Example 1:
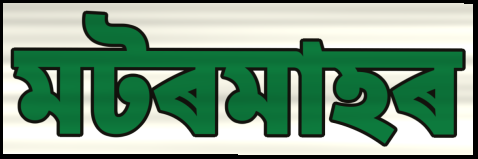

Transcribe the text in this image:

মটৰমাহৰ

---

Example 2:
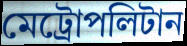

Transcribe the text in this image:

মেট্ৰোপলিটান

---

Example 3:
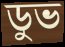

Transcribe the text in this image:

ডুভ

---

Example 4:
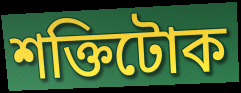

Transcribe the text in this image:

শক্তিটোক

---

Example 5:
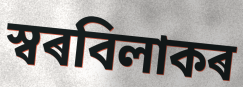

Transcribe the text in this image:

স্বৰবিলাকৰ